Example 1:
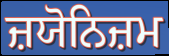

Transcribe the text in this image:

ਜ਼ਯੋਨਿਜ਼ਮ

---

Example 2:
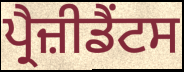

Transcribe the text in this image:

ਪ੍ਰੈਜ਼ੀਡੈਂਟਸ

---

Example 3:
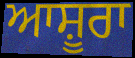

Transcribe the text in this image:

ਆਸ਼ੂਰਾ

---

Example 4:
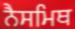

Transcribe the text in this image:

ਨੈਸਮਿਥ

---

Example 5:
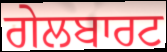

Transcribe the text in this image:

ਗੇਲਬਾਰਟ